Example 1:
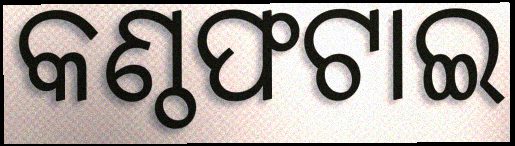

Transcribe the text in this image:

କଣ୍ଠଫଟାଇ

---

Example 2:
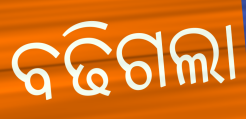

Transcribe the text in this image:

ବଢିଗଲା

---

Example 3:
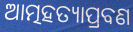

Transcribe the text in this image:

ଆତ୍ମହତ୍ୟାପ୍ରବଣ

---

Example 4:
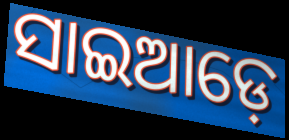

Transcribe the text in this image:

ସାଇଆଡ଼େ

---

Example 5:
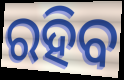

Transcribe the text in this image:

ରହିବ